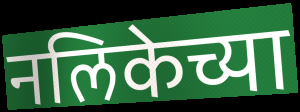
नलिकेच्या